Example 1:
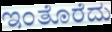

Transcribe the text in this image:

ಇಂತೊರೆದು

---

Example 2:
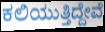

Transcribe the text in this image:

ಕಲಿಯುತ್ತಿದ್ದೇವೆ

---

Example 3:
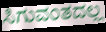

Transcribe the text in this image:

ಸಿಗುವಂತದಲ್ಲ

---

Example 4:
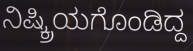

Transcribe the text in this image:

ನಿಷ್ಕ್ರಿಯಗೊಂಡಿದ್ದ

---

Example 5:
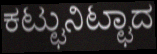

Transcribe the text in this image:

ಕಟ್ಟುನಿಟ್ಟಾದ